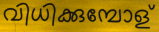
വിധിക്കുമ്പോള്